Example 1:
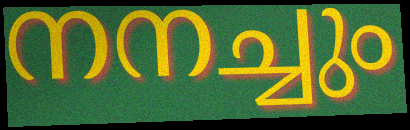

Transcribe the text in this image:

നനച്ചും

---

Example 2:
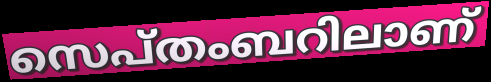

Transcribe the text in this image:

സെപ്തംബറിലാണ്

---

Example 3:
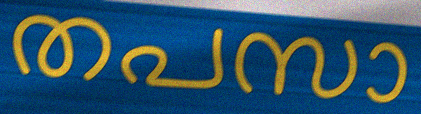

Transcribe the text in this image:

തപസാ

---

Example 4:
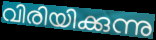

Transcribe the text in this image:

വിരിയിക്കുന്നു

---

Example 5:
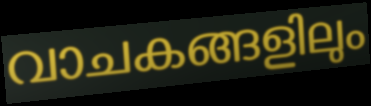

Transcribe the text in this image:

വാചകങ്ങളിലും